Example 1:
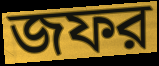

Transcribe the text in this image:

জফর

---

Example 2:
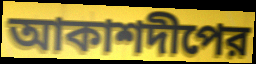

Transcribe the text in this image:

আকাশদীপের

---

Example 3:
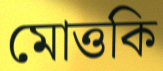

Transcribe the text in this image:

মোত্তকি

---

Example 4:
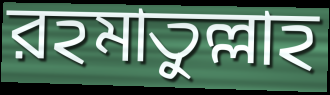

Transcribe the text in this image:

রহমাতুল্লাহ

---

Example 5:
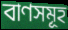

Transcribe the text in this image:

বাণসমূহ